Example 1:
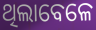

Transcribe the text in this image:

ଥିଲାବେଳେ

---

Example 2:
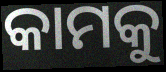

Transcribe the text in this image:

କାମକୁ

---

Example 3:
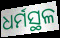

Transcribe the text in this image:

ଧର୍ମସ୍ଥଳ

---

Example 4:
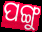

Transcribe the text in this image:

ପଙ୍ଗୁ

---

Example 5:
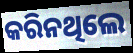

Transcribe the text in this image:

କରିନଥିଲେ